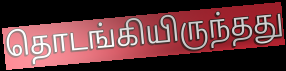
தொடங்கியிருந்தது